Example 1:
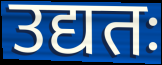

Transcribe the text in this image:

उद्यतः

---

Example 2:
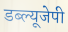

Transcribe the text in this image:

डब्ल्यूजेपी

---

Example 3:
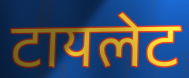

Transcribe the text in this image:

टायलेट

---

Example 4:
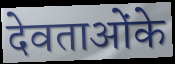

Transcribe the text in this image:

देवताओंके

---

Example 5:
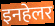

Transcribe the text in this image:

इनहेलर